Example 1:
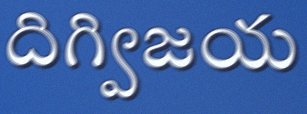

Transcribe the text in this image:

దిగ్విజయ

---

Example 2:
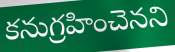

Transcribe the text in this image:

కనుగ్రహించెనని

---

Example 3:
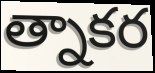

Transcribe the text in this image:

త్నాకర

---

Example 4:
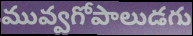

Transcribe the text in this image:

మువ్వగోపాలుడగు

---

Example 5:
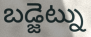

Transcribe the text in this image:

బడ్జెట్ను